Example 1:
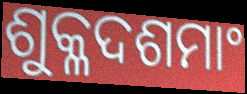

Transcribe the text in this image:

ଶୁକ୍ଳଦଶମାଂ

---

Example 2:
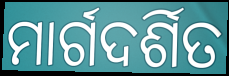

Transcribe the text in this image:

ମାର୍ଗଦର୍ଶିତ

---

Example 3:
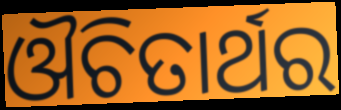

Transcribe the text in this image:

ଔଚିତାର୍ଥର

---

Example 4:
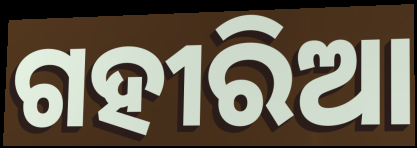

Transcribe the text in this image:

ଗହୀରିଆ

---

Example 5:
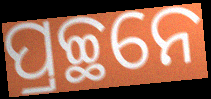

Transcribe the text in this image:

ପ୍ରଚ୍ଛନେ